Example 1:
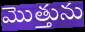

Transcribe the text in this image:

మొత్తును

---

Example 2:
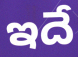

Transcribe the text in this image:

ఇదే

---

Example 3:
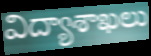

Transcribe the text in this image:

విద్యాశాఖలు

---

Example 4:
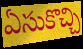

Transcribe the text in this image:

ఏసుకొచ్చి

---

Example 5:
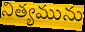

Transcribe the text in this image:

నిత్యమును